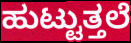
ಹುಟ್ಟುತ್ತಲೆ